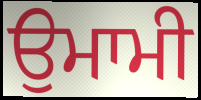
ਉਮਾਮੀ